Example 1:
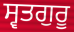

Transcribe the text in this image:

ਸ੍ਵਤਗੁਰੂ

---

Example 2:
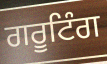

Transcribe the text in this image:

ਗਰੂਟਿੰਗ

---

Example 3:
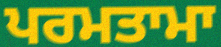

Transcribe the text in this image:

ਪਰਮਤਾਮਾ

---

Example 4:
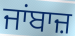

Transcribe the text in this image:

ਜਾਂਬਾਜ਼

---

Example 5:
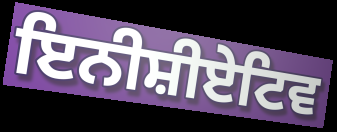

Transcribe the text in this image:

ਇਨੀਸ਼ੀਏਟਿਵ